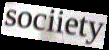
sociiety